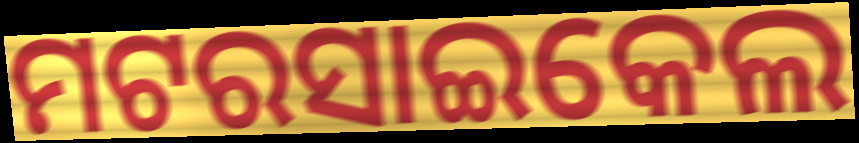
ମଟରସାଇକେଲ